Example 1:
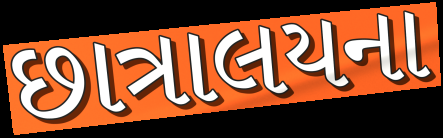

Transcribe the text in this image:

છાત્રાલયના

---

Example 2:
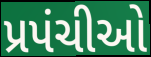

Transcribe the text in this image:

પ્રપંચીઓ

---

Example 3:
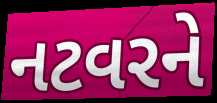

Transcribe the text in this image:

નટવરને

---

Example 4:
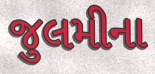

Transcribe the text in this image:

જુલમીના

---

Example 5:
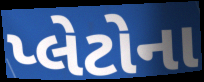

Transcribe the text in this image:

પ્લેટોના